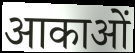
आकाओं